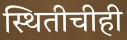
स्थितीचीही